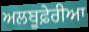
ਅਲਬੂਫ਼ੇਰੀਆ